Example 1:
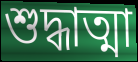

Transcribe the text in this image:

শুদ্ধাত্মা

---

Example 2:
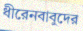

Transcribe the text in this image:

ধীরেনবাবুদের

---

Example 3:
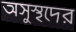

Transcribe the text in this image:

অসুস্থদের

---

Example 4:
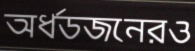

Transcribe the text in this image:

অর্ধডজনেরও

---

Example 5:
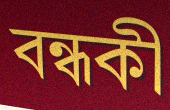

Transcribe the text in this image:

বন্ধকী